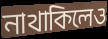
নাথাকিলেও